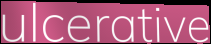
ulcerative